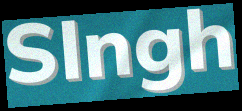
SIngh